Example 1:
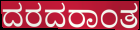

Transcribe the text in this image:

ದರದರಾಂತ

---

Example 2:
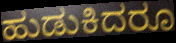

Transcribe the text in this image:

ಹುಡುಕಿದರೂ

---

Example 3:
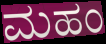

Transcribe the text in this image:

ಮಹಂ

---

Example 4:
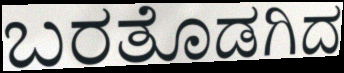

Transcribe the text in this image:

ಬರತೊಡಗಿದ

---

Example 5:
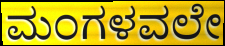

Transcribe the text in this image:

ಮಂಗಳವಲೇ